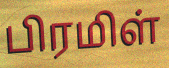
பிரமிள்